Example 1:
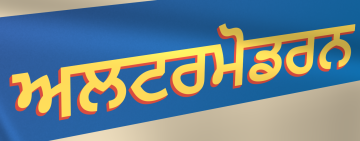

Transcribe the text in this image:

ਅਲਟਰਮੋਡਰਨ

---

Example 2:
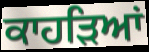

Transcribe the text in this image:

ਕਾਹੜਿਆਂ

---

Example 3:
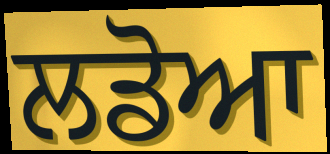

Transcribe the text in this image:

ਲਡੋਆ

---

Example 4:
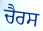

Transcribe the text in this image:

ਚੈਰਸ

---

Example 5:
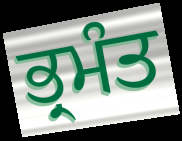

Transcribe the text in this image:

ਭ੍ਰਮੰਤ